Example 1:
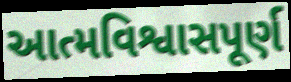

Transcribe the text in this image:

આત્મવિશ્વાસપૂર્ણ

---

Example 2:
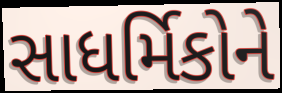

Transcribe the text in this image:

સાધર્મિકોને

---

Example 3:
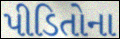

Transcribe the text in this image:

પીડિતોના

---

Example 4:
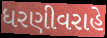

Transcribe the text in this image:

ધરણીવરાહે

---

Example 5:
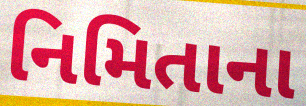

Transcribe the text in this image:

નિમિતાના